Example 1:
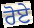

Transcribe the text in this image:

ਰੋਏ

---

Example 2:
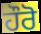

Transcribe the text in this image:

ਹੌਰੋ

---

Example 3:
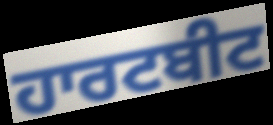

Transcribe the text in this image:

ਹਾਰਟਬੀਟ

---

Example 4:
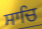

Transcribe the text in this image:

ਸਾਚਿ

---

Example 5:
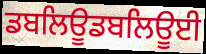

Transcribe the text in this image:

ਡਬਲਿਊਡਬਲਿਊਈ